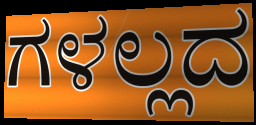
ಗಳಲ್ಲದ